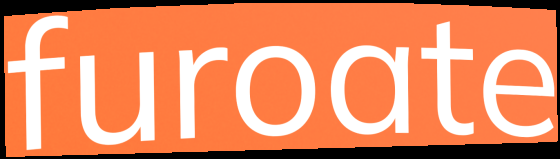
furoate